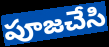
పూజచేసి